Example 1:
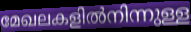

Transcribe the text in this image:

മേഖലകളിൽനിന്നുള്ള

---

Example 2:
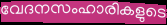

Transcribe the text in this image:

വേദനസംഹാരികളുടെ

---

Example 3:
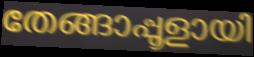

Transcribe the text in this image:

തേങ്ങാപ്പൂളായി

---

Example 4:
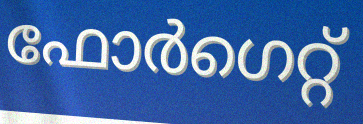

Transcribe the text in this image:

ഫോർഗെറ്റ്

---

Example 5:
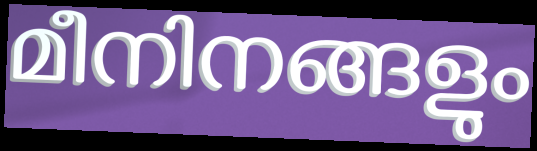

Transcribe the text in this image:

മീനിനങ്ങളും